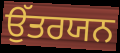
ਉੱਤਰਯਨ